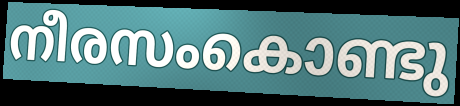
നീരസംകൊണ്ടു